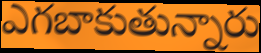
ఎగబాకుతున్నారు